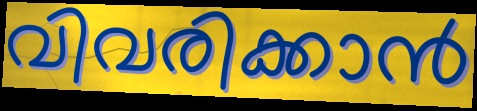
വിവരിക്കാൻ